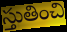
స్తుతించి